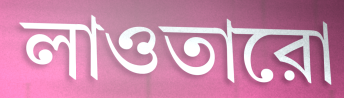
লাওতারো